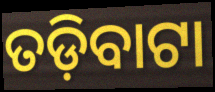
ତଡ଼ିବାଟା